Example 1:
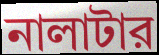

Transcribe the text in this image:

নালাটার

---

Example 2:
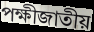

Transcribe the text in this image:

পক্ষীজাতীয়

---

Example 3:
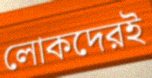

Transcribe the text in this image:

লোকদেরই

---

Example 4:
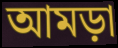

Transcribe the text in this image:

আমড়া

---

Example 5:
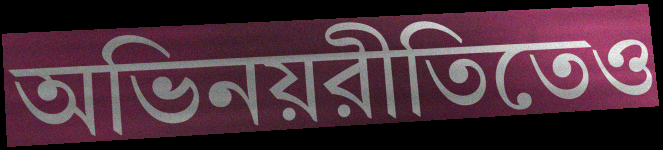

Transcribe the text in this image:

অভিনয়রীতিতেও